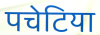
पचेटिया